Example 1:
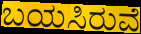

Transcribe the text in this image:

ಬಯಸಿರುವೆ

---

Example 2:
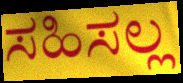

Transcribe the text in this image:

ಸಹಿಸಲ್ಲ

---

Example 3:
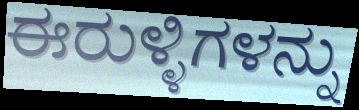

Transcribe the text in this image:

ಈರುಳ್ಳಿಗಳನ್ನು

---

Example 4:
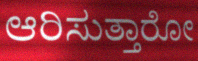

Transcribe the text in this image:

ಆರಿಸುತ್ತಾರೋ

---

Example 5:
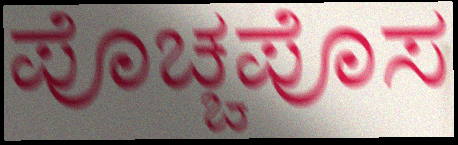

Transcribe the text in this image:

ಪೊಚ್ಚಪೊಸ